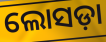
ଲୋସଡ଼ା